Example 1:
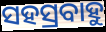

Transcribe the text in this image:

ସହସ୍ରବାହୁ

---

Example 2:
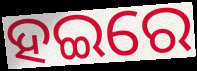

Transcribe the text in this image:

ହଇରେ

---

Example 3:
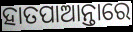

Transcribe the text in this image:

ହାତପାଆନ୍ତାରେ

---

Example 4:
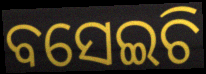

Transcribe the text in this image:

ବସେଇଚି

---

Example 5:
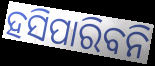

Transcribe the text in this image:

ହସିପାରିବନି